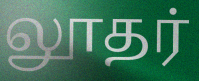
லூதர்